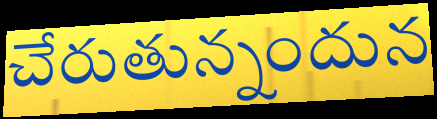
చేరుతున్నందున